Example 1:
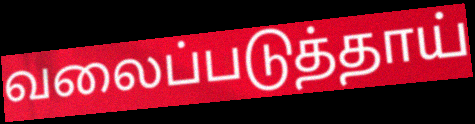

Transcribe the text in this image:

வலைப்படுத்தாய்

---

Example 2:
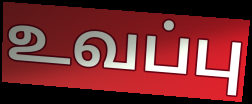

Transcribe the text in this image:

உவப்பு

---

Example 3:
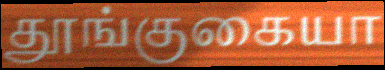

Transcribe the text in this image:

தூங்குகையா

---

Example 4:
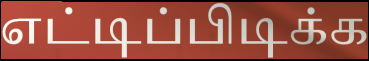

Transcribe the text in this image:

எட்டிப்பிடிக்க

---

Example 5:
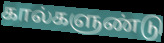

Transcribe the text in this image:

கால்களுண்டு